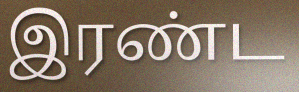
இரண்ட